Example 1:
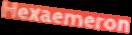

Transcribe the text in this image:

Hexaemeron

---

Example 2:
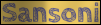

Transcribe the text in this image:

Sansoni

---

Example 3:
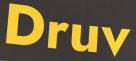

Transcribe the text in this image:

Druv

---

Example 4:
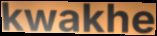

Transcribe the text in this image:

kwakhe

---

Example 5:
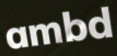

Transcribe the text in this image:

ambd